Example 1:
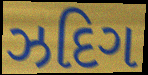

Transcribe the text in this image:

ઝદિગ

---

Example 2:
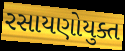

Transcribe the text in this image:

રસાયણોયુક્ત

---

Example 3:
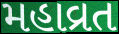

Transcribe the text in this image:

મહાવ્રત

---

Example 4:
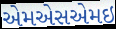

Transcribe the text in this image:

એમએસએમઇ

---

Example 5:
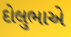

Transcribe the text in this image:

દોલુભાએ